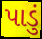
પાડું